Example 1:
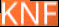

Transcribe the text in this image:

KNF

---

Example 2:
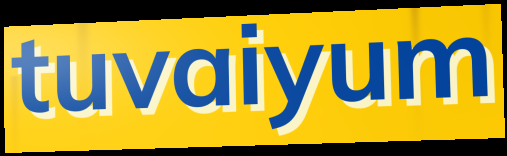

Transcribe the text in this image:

tuvaiyum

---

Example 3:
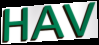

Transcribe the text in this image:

HAV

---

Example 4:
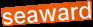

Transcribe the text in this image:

seaward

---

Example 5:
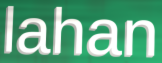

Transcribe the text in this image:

lahan